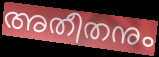
അതീതനും